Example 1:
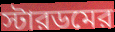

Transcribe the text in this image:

স্টারডমের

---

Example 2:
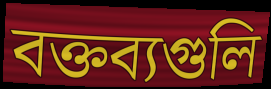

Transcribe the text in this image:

বক্তব্যগুলি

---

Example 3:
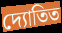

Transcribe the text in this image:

দ্যোতিত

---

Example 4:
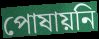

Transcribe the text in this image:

পোষায়নি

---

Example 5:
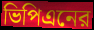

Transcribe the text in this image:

ভিপিএনের